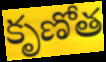
కృణోత